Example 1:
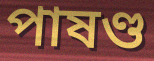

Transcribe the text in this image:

পাষণ্ড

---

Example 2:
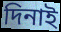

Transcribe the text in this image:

দিনাই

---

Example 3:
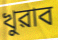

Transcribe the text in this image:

খুৱাব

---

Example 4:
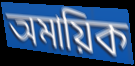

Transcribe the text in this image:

অমায়িক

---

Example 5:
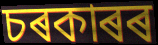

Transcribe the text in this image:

চৰকাৰৰ